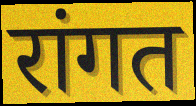
रांगत